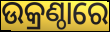
ଉକ୍ରଣ୍ଠାରେ